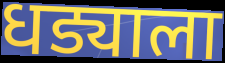
धड्याला